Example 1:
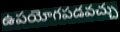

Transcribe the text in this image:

ఉపయోగపడవచ్చు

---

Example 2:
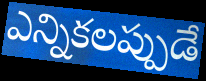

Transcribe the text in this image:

ఎన్నికలప్పుడే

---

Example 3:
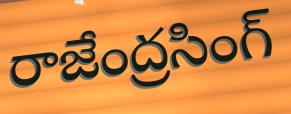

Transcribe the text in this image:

రాజేంద్రసింగ్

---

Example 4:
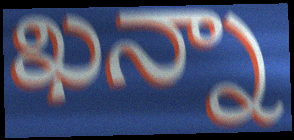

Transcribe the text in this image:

ఖన్నా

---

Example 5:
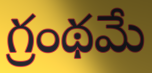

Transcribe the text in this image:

గ్రంథమే